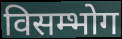
विसम्भोग